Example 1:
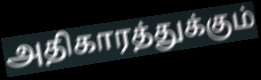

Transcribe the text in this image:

அதிகாரத்துக்கும்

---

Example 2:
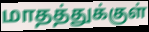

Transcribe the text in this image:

மாதத்துக்குள்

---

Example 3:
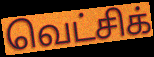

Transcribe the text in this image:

வெட்சிக்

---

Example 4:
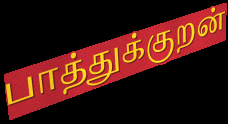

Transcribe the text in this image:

பாத்துக்குறன்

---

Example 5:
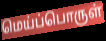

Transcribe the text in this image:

மெய்ப்பொருள்